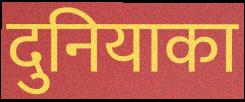
दुनियाका